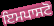
ਇਮਪਾਸਟੋ